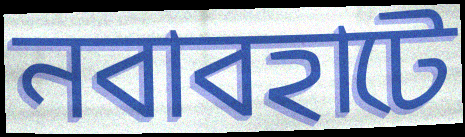
নবাবহাটে